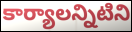
కార్యాలన్నిటిని